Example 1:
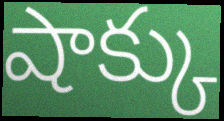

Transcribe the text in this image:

షాక్కు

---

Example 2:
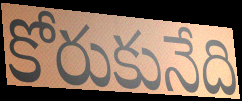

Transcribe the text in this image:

కోరుకునేది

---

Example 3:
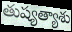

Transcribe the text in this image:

తుష్యత్యాశు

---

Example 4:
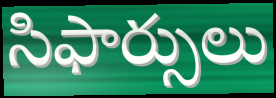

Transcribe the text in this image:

సిఫార్సులు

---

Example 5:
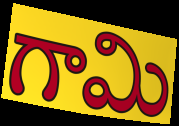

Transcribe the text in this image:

గామి